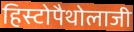
हिस्टोपैथोलाजी